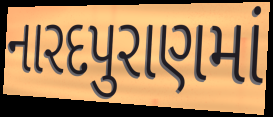
નારદપુરાણમાં